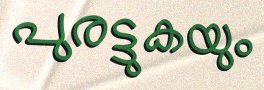
പുരട്ടുകയും